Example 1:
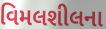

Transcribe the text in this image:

વિમલશીલના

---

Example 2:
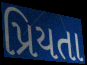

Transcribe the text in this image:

પ્રિયતા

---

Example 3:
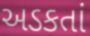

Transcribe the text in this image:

અડકતાં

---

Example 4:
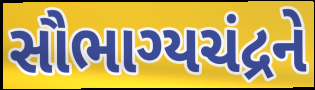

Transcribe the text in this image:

સૌભાગ્યચંદ્રને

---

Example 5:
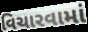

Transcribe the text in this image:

વિચારવામાં